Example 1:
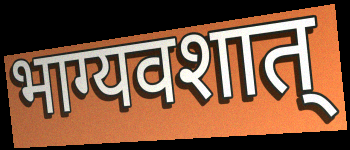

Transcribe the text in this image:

भाग्यवशात्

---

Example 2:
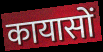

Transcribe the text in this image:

कायासों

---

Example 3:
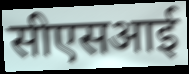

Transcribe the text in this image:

सीएसआई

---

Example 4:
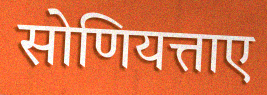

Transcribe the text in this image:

सोणियत्ताए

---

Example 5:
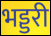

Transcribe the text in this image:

भड्डरी